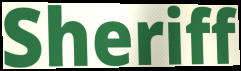
Sheriff